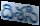
దిశసి